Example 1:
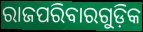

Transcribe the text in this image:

ରାଜପରିବାରଗୁଡ଼ିକ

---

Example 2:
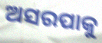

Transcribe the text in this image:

ଅସରପାକୁ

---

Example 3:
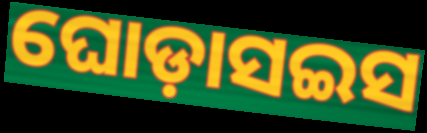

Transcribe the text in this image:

ଘୋଡ଼ାସଇସ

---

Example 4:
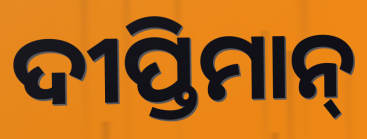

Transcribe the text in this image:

ଦୀପ୍ତିମାନ୍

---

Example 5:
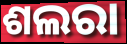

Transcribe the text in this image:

ଶଲରା